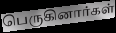
பெருகினார்கள்